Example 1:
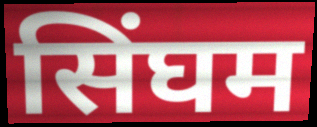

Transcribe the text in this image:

सिंघम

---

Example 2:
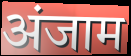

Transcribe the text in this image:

अंजाम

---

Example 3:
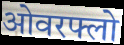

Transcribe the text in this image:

ओवरफ्लो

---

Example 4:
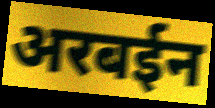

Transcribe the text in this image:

अरबईन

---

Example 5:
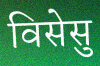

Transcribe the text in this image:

विसेसु